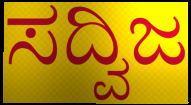
ಸದ್ವಿಜ